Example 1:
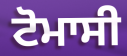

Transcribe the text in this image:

ਟੋਮਾਸੀ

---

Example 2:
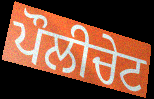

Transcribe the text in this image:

ਪੌਲੀਚੇਟ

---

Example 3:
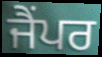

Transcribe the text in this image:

ਜੈਂਪਰ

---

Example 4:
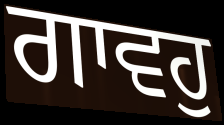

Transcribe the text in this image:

ਗਾਵਹੁ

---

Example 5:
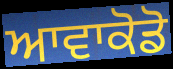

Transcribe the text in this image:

ਆਵਾਕੋਡੋ